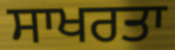
ਸਾਖਰਤਾ